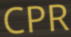
CPR